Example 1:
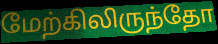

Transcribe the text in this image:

மேற்கிலிருந்தோ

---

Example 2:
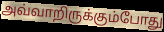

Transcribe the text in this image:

அவ்வாறிருக்கும்போது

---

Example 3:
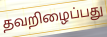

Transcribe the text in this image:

தவறிழைப்பது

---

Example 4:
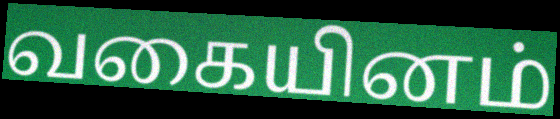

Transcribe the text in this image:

வகையினம்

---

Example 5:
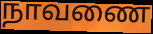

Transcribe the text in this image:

நாவணை